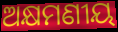
ଅକ୍ଷମଣୀୟ